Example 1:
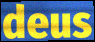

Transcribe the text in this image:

deus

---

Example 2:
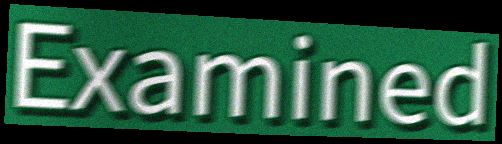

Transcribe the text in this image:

Examined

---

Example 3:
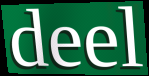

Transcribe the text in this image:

deel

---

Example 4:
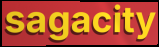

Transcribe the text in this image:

sagacity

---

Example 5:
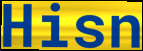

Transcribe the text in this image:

Hisn